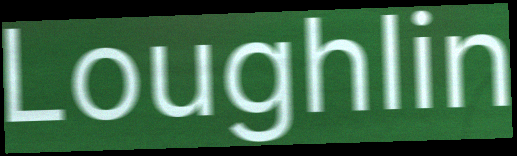
Loughlin